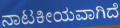
ನಾಟಕೀಯವಾಗಿದೆ